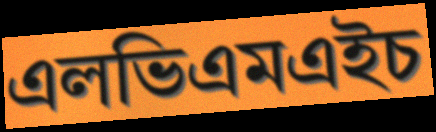
এলভিএমএইচ